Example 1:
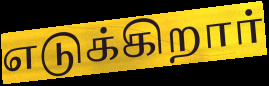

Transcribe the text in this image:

எடுக்கிறார்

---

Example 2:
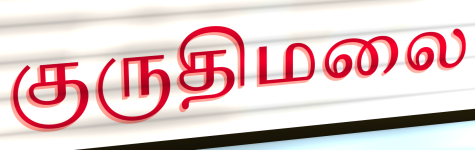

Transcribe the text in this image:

குருதிமலை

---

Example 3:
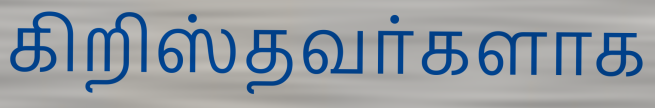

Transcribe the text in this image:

கிறிஸ்தவர்களாக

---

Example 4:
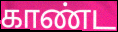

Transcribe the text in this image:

காண்ட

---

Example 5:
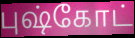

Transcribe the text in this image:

புஷ்கோட்